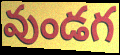
వుండగ